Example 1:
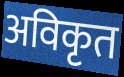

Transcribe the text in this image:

अविकृत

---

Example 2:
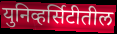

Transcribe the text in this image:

युनिव्हर्सिटीतील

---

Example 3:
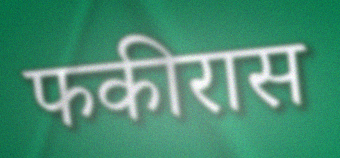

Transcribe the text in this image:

फकीरास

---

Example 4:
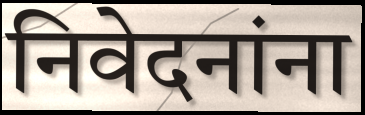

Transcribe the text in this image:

निवेदनांना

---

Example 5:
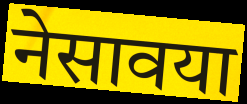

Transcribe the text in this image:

नेसावया